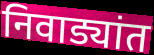
निवाड्यांत